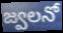
జ్వలనో